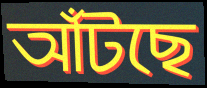
আঁটছে